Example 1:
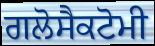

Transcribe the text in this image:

ਗਲੋਸੈਕਟੋਮੀ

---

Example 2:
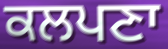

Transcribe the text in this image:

ਕਲਪਣਾ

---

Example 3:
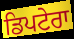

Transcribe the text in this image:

ਡਿਪਟੇਰਾ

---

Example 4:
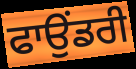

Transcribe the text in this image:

ਫਾਉਂਡਰੀ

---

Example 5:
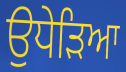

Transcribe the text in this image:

ਉਧੇੜਿਆ